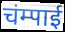
चंम्पाई